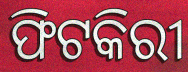
ଫିଟକିରୀ